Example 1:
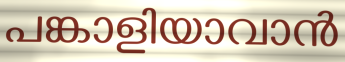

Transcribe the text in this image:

പങ്കാളിയാവാൻ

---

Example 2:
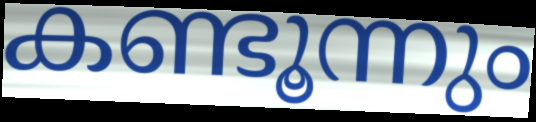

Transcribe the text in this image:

കണ്ടൂന്നും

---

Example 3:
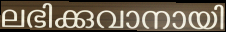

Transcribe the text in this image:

ലഭിക്കുവാനായി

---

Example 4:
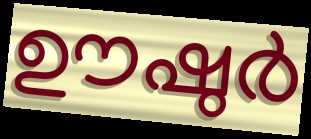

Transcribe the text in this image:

ഊഷുർ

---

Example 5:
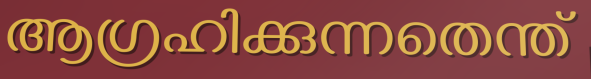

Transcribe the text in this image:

ആഗ്രഹിക്കുന്നതെന്ത്